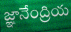
జ్ఞానేంద్రియ